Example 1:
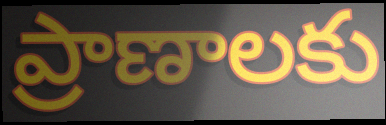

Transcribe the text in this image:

ప్రాణాలకు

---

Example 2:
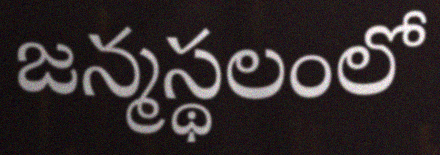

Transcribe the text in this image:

జన్మస్థలంలో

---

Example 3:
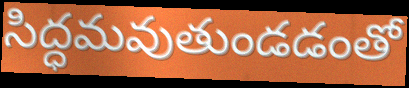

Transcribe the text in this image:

సిద్ధమవుతుండడంతో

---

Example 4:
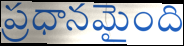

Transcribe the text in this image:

ప్రధానమైంది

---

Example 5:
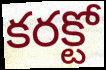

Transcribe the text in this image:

కరక్టో